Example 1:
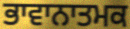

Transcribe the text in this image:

ਭਾਵਾਨਾਤਮਕ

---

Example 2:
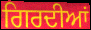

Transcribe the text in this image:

ਗਿਰਦੀਆਂ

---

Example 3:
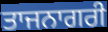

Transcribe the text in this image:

ਤਾਜਨਾਗਰੀ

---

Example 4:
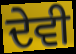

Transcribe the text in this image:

ਦੇਵੀ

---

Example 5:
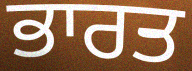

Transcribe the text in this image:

ਭਾਰਤ